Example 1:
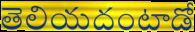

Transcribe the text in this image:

తెలియదంటాడో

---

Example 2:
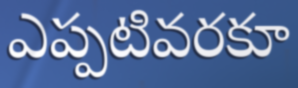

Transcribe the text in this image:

ఎప్పటివరకూ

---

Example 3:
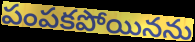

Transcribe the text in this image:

పంపకపోయినను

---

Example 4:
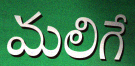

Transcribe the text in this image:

మలిగే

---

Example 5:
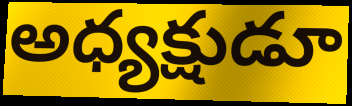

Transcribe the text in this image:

అధ్యక్షుడూ